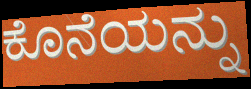
ಕೊನೆಯನ್ನು